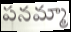
పనమ్మా